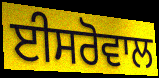
ਈਸਰੋਵਾਲ